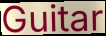
Guitar